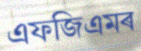
এফজিএমৰ